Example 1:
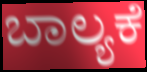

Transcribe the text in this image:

ಬಾಲ್ಯಕೆ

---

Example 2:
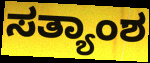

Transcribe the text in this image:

ಸತ್ಯಾಂಶ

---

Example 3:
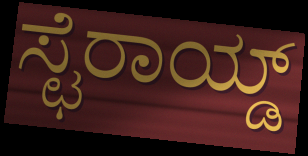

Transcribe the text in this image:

ಸ್ಟೆರಾಯ್ಡ್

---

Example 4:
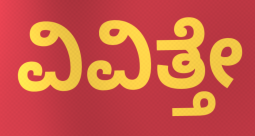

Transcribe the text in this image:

ವಿವಿತ್ತೇ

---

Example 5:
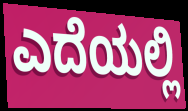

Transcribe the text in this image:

ಎದೆಯಲ್ಲಿ